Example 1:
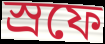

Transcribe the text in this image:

স্রফে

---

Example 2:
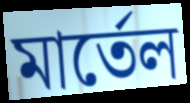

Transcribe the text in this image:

মার্তেল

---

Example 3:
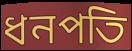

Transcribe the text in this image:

ধনপতি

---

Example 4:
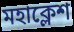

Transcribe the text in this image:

মহাক্লেশ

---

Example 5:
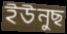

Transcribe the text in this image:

ইউনুছ